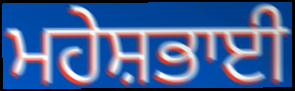
ਮਹੇਸ਼ਭਾਈ